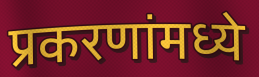
प्रकरणांमध्ये